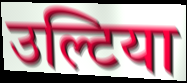
उल्टिया